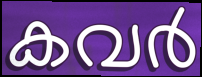
കവർ